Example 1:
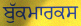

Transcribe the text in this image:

ਬੁੱਕਮਾਰਕਸ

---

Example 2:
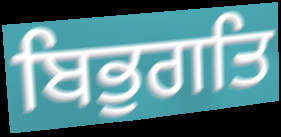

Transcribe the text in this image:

ਬਿਭੁਗਤਿ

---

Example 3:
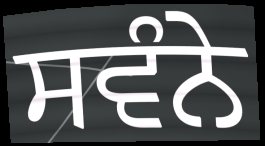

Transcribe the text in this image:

ਸਵੰਨੇ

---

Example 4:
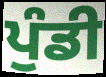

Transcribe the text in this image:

ਪੁੰਡੀ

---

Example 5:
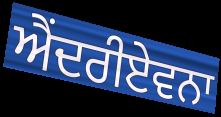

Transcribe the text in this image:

ਐਂਦਰੀਏਵਨਾ